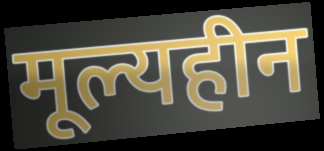
मूल्यहीन